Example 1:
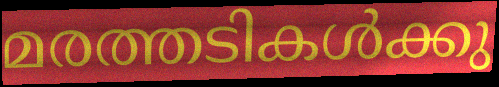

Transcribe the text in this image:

മരത്തടികൾക്കു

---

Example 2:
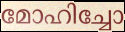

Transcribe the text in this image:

മോഹിച്ചോ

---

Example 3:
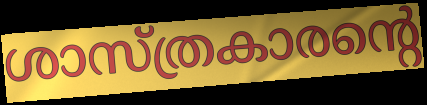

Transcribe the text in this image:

ശാസ്ത്രകാരന്റെ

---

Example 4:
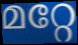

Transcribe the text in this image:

മറ്റേ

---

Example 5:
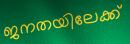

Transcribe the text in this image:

ജനതയിലേക്ക്